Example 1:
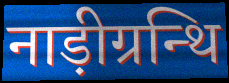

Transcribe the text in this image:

नाड़ीग्रन्थि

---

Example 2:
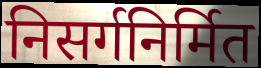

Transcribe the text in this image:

निसर्गनिर्मित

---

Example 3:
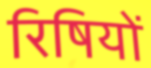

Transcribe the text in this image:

रिषियों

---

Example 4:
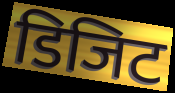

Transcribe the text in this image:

डिजिट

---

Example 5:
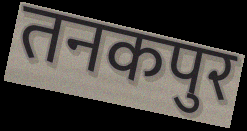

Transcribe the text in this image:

तनकपुर